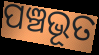
ପଞ୍ଚଭୂତ